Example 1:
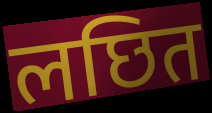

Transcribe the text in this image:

लछित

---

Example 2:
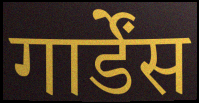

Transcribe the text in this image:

गार्डेंस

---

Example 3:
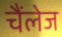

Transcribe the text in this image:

चैंलेज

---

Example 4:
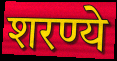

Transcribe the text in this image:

शरण्ये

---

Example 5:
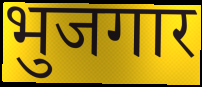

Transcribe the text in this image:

भुजगार